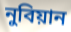
নুবিয়ান